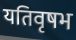
यतिवृषभ